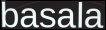
basala